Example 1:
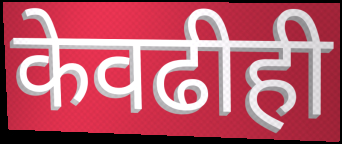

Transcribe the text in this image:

केवढीही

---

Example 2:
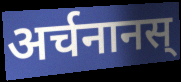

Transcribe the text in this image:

अर्चनानस्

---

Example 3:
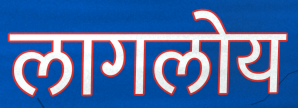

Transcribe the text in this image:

लागलोय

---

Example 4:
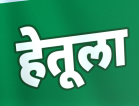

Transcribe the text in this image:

हेतूला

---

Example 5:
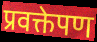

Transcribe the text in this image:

प्रवक्तेपण